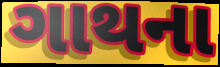
ગાથના